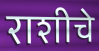
राशीचे